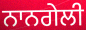
ਨਾਨਗੇਲੀ